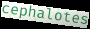
cephalotes